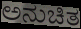
ಅನುಚಿತ